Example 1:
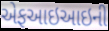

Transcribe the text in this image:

એફઆઇઆઇની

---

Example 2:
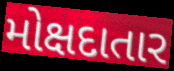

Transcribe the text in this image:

મોક્ષદાતાર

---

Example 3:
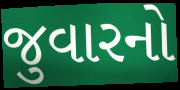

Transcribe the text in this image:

જુવારનો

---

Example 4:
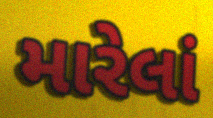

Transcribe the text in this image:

મારેલાં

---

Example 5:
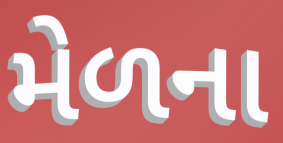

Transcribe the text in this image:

મેળના